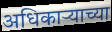
अधिकाऱ्याच्या